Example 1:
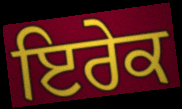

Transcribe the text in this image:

ਇਰੇਕ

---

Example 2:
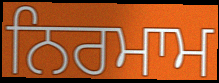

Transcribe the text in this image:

ਨਿਰਮਾਮ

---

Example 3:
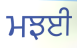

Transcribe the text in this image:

ਮਝਈ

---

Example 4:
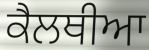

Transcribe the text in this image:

ਕੈਲਥੀਆ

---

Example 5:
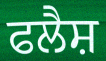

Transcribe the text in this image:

ਫਲੈਸ਼